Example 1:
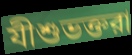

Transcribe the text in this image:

যীশুভক্তরা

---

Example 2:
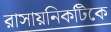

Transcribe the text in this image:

রাসায়নিকটিকে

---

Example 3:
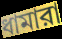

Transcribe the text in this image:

ধামারা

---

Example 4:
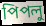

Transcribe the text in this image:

পিপলু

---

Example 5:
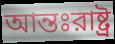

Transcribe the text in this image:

আন্তঃরাষ্ট্র